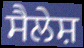
ਸੈਲੇਸ਼